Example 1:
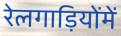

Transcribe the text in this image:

रेलगाड़ियोंमें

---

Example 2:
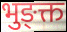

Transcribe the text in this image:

भुङ्क्त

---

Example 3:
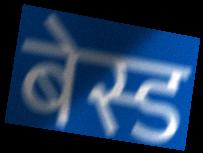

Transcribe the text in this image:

बेस्ड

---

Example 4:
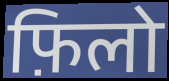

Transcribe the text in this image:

फ़िलो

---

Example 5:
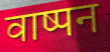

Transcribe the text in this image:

वाष्पन